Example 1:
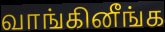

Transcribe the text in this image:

வாங்கினீங்க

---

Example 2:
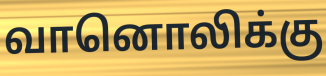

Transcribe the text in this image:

வானொலிக்கு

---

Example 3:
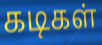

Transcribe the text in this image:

கடிகள்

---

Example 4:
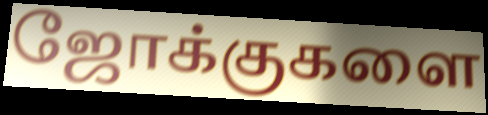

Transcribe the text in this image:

ஜோக்குகளை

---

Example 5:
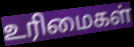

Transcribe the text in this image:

உரிமைகள்